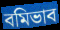
বমিভাব